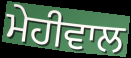
ਮੇਹੀਵਾਲ